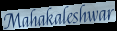
Mahakaleshwar